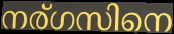
നര്ഗസിനെ